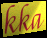
kka